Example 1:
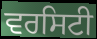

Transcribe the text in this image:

ਵਰਸਿਟੀ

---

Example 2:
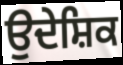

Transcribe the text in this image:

ਉਦੇਸ਼ਿਕ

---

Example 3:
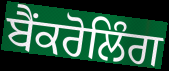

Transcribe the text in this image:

ਬੈਂਕਰੋਲਿੰਗ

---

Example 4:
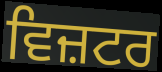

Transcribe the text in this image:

ਵਿਜ਼ਟਰ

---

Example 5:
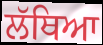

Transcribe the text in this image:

ਲੱਥਿਆ